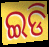
ଇଡି